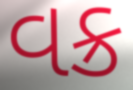
વક્ર